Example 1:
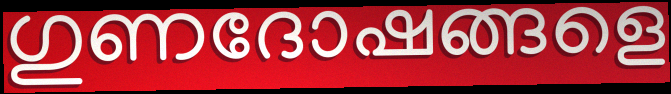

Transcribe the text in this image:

ഗുണദോഷങ്ങളെ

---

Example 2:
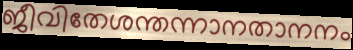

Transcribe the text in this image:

ജീവിതേശന്തന്നാനതാനനം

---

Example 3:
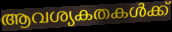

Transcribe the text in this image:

ആവശ്യകതകൾക്ക്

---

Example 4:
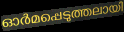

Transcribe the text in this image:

ഓർമപ്പെടുത്തലായി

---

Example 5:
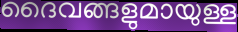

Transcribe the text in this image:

ദൈവങ്ങളുമായുള്ള